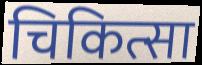
चिकित्सा